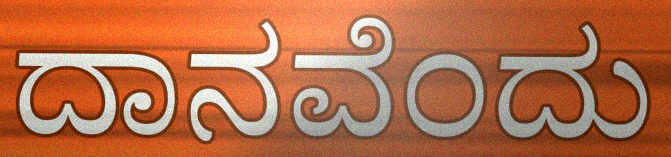
ದಾನವೆಂದು